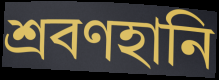
শ্রবণহানি